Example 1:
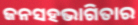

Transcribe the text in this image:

ଜନସହଭାଗିତାର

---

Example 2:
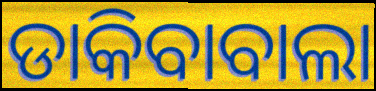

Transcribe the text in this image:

ଡାକିବାବାଲା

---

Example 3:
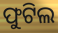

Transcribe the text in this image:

ଫୁଟିଲ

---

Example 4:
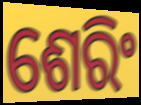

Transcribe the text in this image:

ଶେରିଂ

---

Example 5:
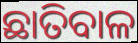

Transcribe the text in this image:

ଛାତିବାଳ